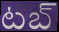
టబ్